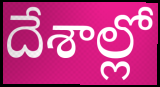
దేశాల్లో